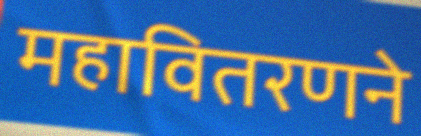
महावितरणने